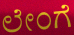
ಲೇಂಗೆ